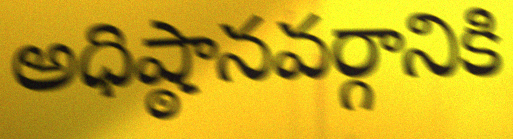
అధిష్ఠానవర్గానికి